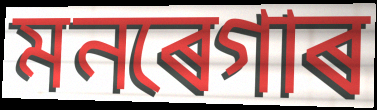
মনৰেগাৰ